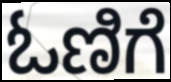
ಓಣಿಗೆ